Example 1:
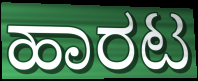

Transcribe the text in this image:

ಹಾರಟ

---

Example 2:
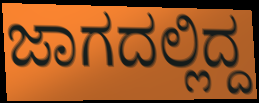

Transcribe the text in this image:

ಜಾಗದಲ್ಲಿದ್ದ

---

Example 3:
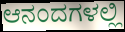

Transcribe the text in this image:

ಆನಂದಗಳಲ್ಲಿ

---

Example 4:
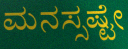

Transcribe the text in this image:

ಮನಸ್ಸಷ್ಟೇ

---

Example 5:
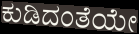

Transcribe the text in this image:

ಕುಡಿದಂತೆಯೇ